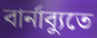
বার্নাব্যুতে